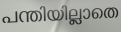
പന്തിയില്ലാതെ